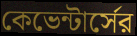
কেভেন্টার্সের